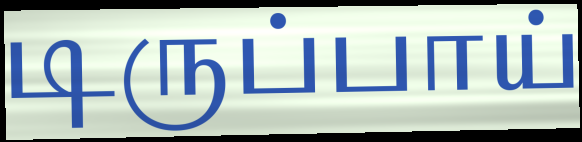
டிருப்பாய்